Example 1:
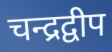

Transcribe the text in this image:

चन्द्रद्वीप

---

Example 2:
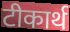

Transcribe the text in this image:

टीकार्थ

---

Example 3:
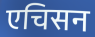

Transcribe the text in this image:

एचिसन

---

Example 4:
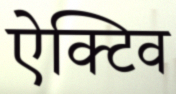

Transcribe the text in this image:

ऐक्टिव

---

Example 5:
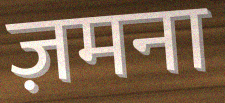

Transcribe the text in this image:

ज़मना